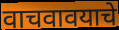
वाचवावयाचे